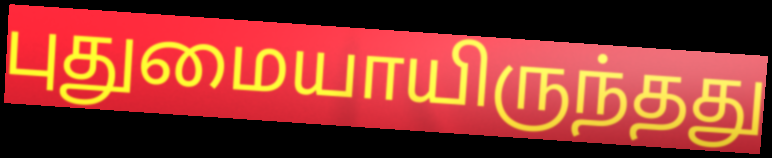
புதுமையாயிருந்தது